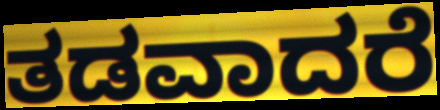
ತಡವಾದರೆ